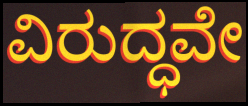
ವಿರುದ್ಧವೇ